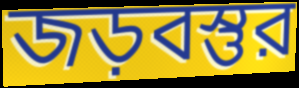
জড়বস্তুর